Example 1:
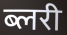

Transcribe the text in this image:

ब्लरी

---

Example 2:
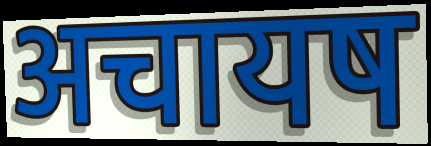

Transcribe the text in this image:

अचायष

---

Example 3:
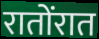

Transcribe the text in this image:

रातोंरात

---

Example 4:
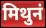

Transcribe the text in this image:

मिथुनं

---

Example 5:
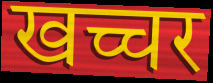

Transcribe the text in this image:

खच्‍चर